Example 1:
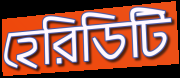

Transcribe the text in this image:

হেরিডিটি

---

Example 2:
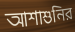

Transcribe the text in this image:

আশাশুনির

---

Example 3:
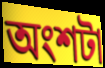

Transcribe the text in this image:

অংশটা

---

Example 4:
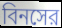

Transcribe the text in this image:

বিনসের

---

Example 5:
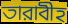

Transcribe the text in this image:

তারাবীহ